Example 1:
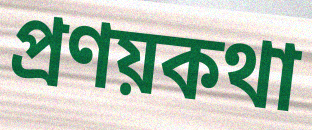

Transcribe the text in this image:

প্রণয়কথা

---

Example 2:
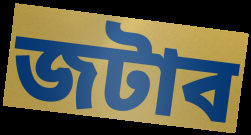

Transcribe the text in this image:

জটাব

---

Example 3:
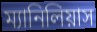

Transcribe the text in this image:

ম্যানিলিয়াস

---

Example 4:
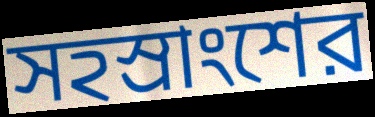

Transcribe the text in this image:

সহস্রাংশের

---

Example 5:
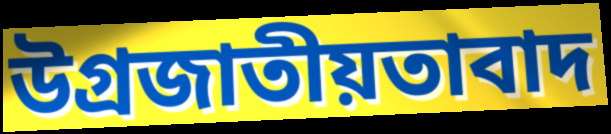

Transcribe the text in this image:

উগ্রজাতীয়তাবাদ